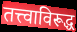
तत्त्वाविरूद्ध